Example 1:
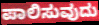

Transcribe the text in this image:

ಪಾಲಿಸುವುದು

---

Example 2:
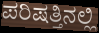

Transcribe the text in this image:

ಪರಿಷತ್ತಿನಲ್ಲಿ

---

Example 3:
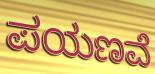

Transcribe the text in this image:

ಪಯಣವೆ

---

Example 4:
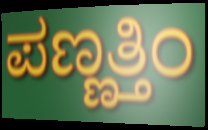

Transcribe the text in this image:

ಪಣ್ಣತ್ತಿಂ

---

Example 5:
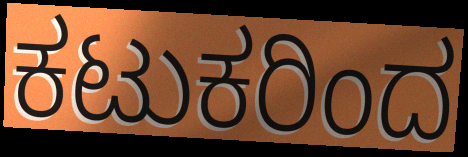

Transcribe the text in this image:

ಕಟುಕರಿಂದ